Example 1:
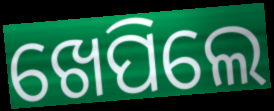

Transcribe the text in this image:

ଖେପିଲେ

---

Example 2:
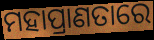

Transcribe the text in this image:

ମହାପ୍ରାଣତାରେ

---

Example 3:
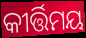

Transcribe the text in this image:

କୀର୍ତ୍ତିମୟ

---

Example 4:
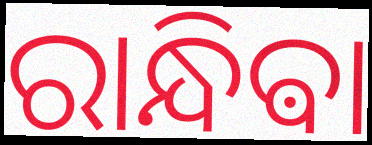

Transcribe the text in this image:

ରାନ୍ଧିଵା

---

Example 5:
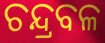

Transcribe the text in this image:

ଚନ୍ଦ୍ରବଳ